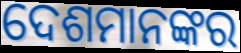
ଦେଶମାନଙ୍କର